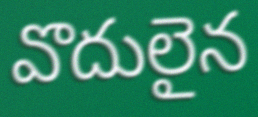
వొదులైన